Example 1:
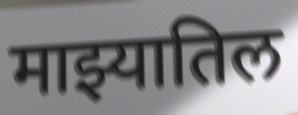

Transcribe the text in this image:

माझ्यातिल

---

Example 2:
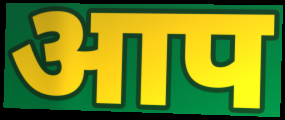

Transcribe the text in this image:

आप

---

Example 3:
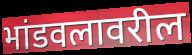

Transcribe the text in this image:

भांडवलावरील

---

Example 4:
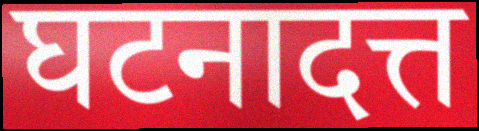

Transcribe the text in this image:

घटनादत्त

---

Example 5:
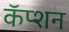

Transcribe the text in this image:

कॅप्शन